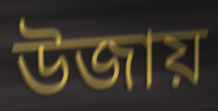
উজায়